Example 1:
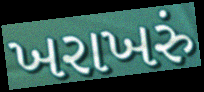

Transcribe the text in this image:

ખરાખરું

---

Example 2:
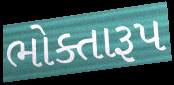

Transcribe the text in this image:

ભોક્તારૂપ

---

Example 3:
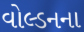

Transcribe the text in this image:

વોલ્ડનના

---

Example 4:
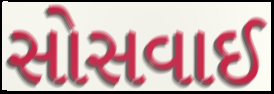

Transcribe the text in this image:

સોસવાઈ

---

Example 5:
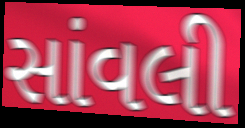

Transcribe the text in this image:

સાંવલી